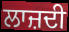
ਲਾਜ਼ਦੀ